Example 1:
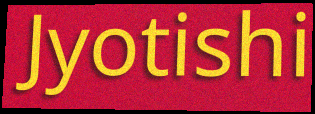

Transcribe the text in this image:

Jyotishi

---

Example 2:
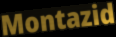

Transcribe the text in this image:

Montazid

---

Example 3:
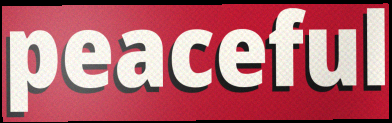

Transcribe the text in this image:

peaceful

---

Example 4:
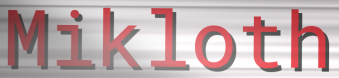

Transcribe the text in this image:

Mikloth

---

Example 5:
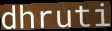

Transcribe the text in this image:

dhruti